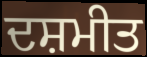
ਦਸ਼ਮੀਤ